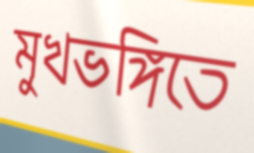
মুখভঙ্গিতে